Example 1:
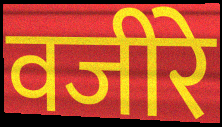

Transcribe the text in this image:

वजीरे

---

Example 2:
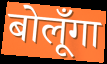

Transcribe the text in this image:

बोलूँगा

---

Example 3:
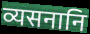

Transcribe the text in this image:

व्यसनानि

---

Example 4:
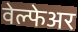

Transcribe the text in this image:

वेल्फेअर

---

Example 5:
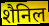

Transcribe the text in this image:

शैनिल